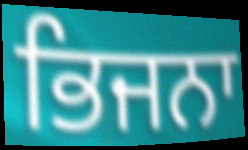
ਭਿਜਨਾ